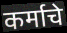
कर्माचे